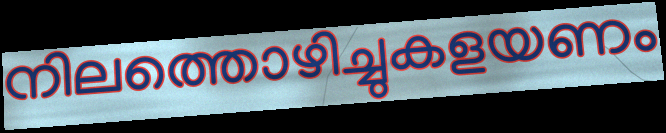
നിലത്തൊഴിച്ചുകളയണം